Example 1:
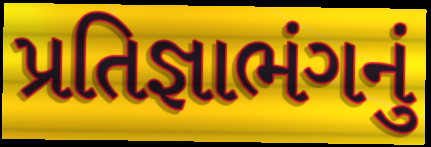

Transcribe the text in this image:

પ્રતિજ્ઞાભંગનું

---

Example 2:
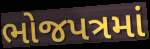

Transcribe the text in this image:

ભોજપત્રમાં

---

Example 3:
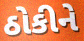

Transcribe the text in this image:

ઠોકીને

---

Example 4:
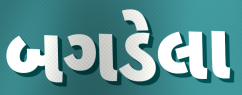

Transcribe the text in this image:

બગડેલા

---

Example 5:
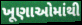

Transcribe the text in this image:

ખૂણાઓમાંથી